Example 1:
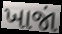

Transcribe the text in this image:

ખાજાં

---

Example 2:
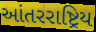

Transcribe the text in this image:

આંતરરાષ્ટ્રિય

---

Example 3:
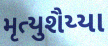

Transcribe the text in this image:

મૃત્યુશૈય્યા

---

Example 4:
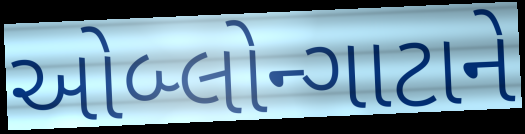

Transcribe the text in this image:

ઓબ્લોન્ગાટાને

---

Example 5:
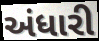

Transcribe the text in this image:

અંધારી